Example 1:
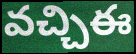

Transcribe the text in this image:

వచ్చిఈ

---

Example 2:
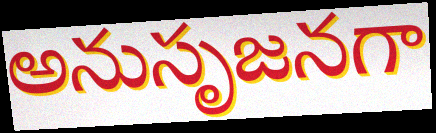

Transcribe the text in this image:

అనుసృజనగా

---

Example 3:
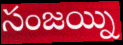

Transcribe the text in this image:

సంజయ్ని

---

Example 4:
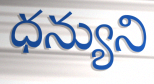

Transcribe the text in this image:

ధన్యుని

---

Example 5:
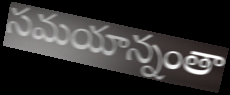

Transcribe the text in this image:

సమయాన్నంతా